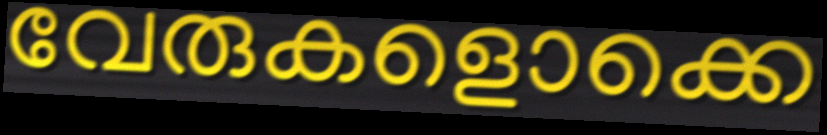
വേരുകളൊക്കെ